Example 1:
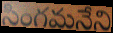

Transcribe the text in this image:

సింగమనేని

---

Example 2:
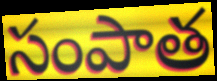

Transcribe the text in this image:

సంపాత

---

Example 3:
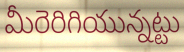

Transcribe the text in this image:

మీరెరిగియున్నట్టు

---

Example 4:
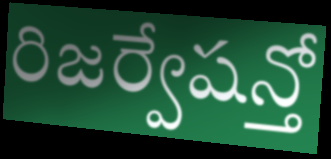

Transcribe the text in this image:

రిజర్వేషన్తో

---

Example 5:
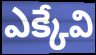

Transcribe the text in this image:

ఎక్కేవి